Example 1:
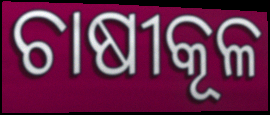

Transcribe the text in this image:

ଚାଷୀକୂଳ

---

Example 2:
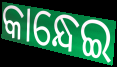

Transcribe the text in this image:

କାନ୍ଧେଇ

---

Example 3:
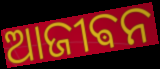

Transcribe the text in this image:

ଆଜୀଵନ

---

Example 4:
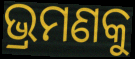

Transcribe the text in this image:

ଭ୍ରମଣକୁ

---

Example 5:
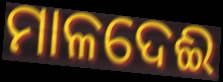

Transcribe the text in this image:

ମାଳଦେଈ